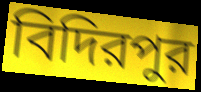
বিদিরপুর